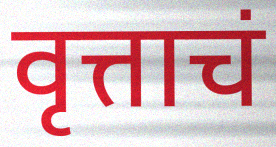
वृत्ताचं